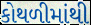
કોથળીમાંથી